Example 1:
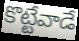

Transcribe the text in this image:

కొట్టేవాడే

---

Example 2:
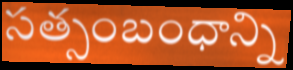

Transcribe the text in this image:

సత్సంబంధాన్ని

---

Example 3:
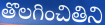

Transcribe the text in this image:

తొలగించితిని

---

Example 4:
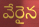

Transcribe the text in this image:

వేరైన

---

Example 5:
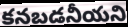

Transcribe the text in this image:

కనబడనీయని